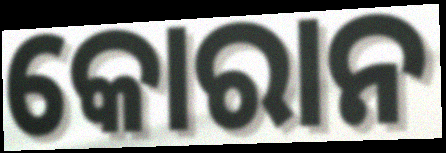
କୋରାନ